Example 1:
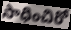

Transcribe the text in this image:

సాధించిరో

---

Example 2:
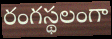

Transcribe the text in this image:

రంగస్థలంగా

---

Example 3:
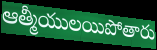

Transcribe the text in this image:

ఆత్మీయులయిపోతారు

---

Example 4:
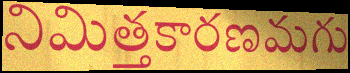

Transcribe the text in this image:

నిమిత్తకారణమగు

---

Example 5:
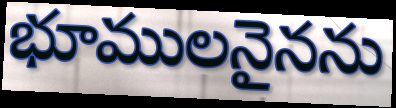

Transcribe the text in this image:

భూములనైనను